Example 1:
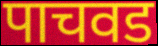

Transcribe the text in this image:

पाचवड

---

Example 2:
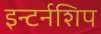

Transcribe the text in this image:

इन्टर्नशिप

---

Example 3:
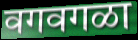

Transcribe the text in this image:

वगवगळा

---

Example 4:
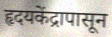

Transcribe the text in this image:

हृदयकेंद्रापासून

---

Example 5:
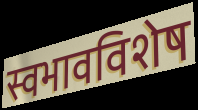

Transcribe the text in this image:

स्वभावविशेष